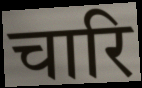
चारि